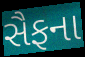
સૈફના